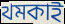
থমকাই